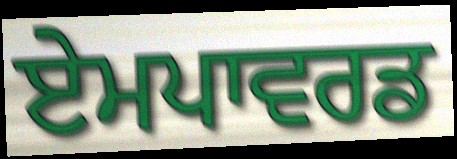
ਏਮਪਾਵਰਡ